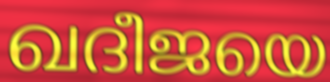
ഖദീജയെ